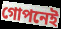
গোপনেই